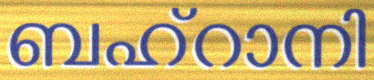
ബഹ്റാനി